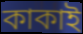
কাকাই